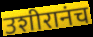
उशीरानंच